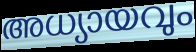
അധ്യായവും